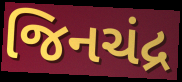
જિનચંદ્ર